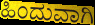
ಹಿಂದುವಾಗಿ